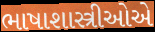
ભાષાશાસ્ત્રીઓએ